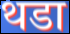
थडा